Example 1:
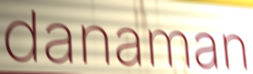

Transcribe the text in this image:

danaman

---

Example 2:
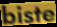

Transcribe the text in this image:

biste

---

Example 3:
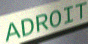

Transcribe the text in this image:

ADROIT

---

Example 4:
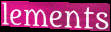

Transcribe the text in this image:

lements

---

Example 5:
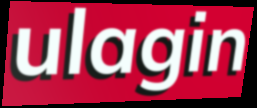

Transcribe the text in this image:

ulagin